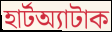
হার্টঅ্যাটাক